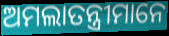
ଅମଲାତନ୍ତ୍ରୀମାନେ